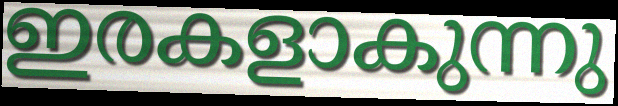
ഇരകളാകുന്നു